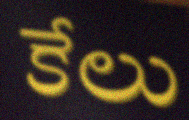
కేలు